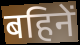
बहिनें